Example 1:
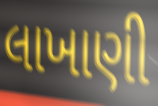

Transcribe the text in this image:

લાખાણી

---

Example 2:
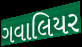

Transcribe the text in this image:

ગવાલિયર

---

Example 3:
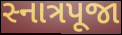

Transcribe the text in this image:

સ્નાત્રપૂજા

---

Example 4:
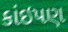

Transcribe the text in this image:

કાંઇપણ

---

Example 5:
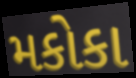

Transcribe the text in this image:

મકોકા